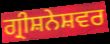
ਗ੍ਰੀਸ਼ਨੇਸ਼ਵਰ